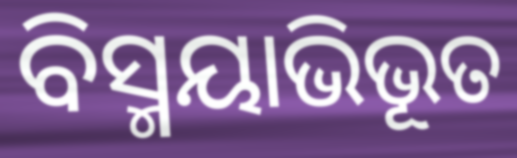
ବିସ୍ମୟାଭିଭୂତ